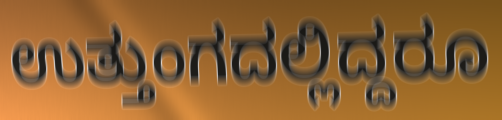
ಉತ್ತುಂಗದಲ್ಲಿದ್ದರೂ